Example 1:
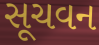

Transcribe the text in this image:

સૂચવન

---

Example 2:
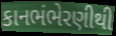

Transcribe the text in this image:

કાનભંભેરણીથી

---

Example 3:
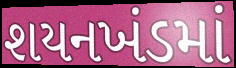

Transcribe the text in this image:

શયનખંડમાં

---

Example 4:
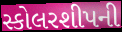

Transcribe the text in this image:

સ્કોલરશીપની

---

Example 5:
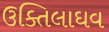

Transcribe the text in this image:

ઉક્તિલાઘવ